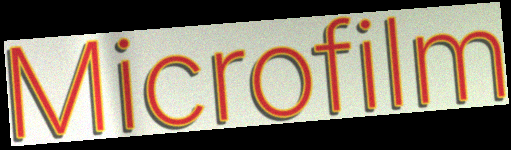
Microfilm